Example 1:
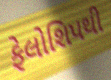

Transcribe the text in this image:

ફેલોશિપથી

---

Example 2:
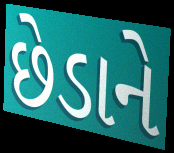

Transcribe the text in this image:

છેડાને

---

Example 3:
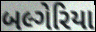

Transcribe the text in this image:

બલ્ગેરિયા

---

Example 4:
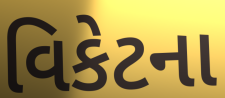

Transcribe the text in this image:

વિકેટના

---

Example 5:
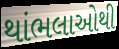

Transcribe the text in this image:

થાંભલાઓથી